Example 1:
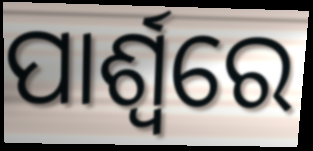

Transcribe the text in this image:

ପାର୍ଶ୍ୱରେ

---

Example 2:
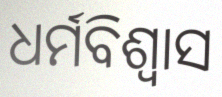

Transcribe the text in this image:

ଧର୍ମବିଶ୍ଵାସ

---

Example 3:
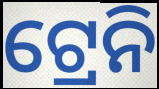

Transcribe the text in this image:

ଟ୍ରେନି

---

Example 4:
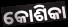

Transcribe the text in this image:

କୋଶିକା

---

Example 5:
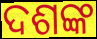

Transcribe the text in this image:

ଦଶଙ୍କ